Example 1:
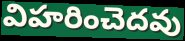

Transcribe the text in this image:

విహరించెదవు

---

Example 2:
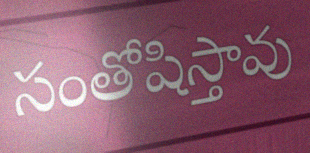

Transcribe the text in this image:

సంతోషిస్తావు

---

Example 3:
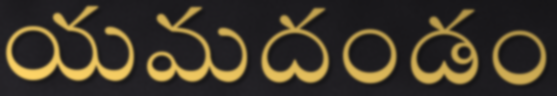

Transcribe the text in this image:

యమదండం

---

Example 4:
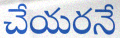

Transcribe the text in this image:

చేయరనే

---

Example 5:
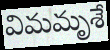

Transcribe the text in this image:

విమమృశే